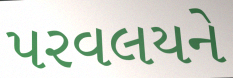
પરવલયને